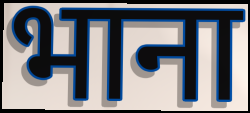
भाना